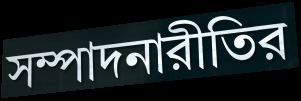
সম্পাদনারীতির